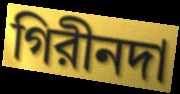
গিরীনদা